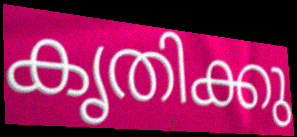
കൃതിക്കു